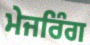
ਮੇਜਰਿੰਗ